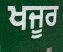
ਖਜੂਰ